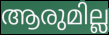
ആരുമില്ല